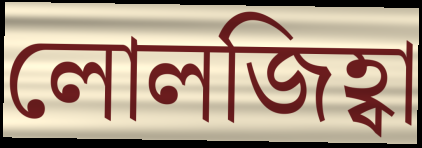
লোলজিহ্বা